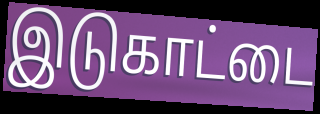
இடுகாட்டை